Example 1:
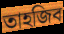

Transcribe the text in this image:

তাহজিব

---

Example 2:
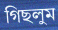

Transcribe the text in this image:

গিছলুম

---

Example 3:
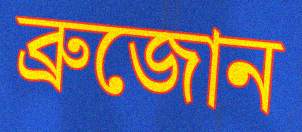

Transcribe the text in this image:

ব্রুজোন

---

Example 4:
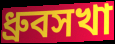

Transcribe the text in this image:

ধ্রুবসখা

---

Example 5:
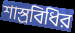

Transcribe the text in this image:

শাস্ত্রবিধির